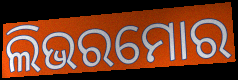
ଲିଭରମୋର